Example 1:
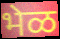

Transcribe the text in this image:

भेळ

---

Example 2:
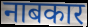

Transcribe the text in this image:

नाबकार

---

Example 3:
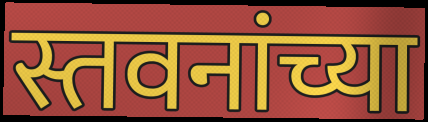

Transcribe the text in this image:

स्तवनांच्या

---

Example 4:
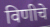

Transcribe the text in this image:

विणीचे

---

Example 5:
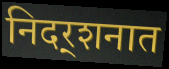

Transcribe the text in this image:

निदर्शनात